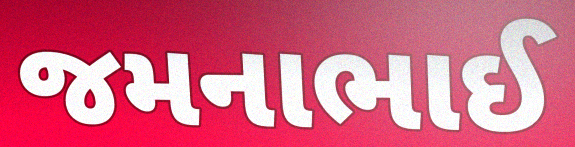
જમનાભાઈ